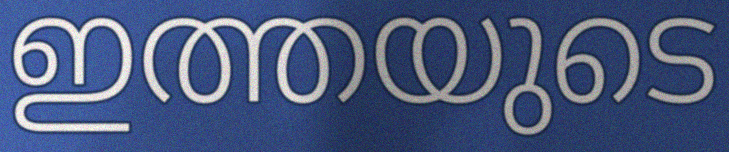
ഇത്തയുടെ